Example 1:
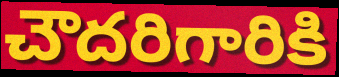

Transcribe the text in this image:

చౌదరిగారికి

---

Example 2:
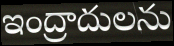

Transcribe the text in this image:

ఇంద్రాదులను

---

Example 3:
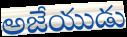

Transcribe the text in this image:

అజేయుడు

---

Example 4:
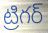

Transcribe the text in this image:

ట్రిగర్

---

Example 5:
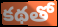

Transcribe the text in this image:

కథతో